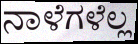
ನಾಳೆಗಳೆಲ್ಲ